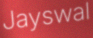
Jayswal